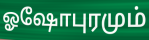
ஓஷோபுரமும்